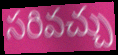
సరివచ్చు